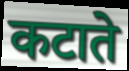
कटाते